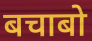
बचाबो